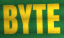
BYTE